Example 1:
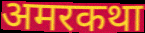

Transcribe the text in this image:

अमरकथा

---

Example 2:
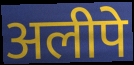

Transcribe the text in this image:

अलीपे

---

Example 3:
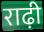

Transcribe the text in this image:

राढ़ी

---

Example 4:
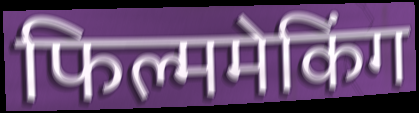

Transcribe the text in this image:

फिल्‍ममेकिंग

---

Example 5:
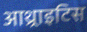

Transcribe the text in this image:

आथ्र्राइटिस